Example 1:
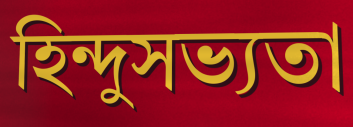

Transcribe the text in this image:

হিন্দুসভ্যতা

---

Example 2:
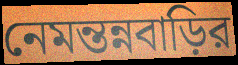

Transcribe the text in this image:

নেমন্তন্নবাড়ির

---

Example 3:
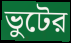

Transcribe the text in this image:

ভুটের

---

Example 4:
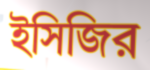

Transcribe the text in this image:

ইসিজির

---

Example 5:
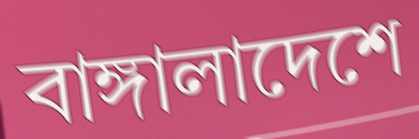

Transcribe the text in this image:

বাঙ্গালাদেশে